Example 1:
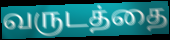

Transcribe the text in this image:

வருடத்தை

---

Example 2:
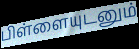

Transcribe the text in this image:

பிள்ளையுடனும்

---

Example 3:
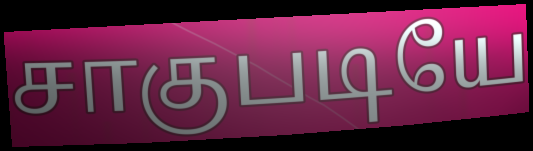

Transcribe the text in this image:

சாகுபடியே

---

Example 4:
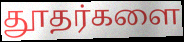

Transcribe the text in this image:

தூதர்களை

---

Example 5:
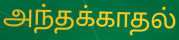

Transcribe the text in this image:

அந்தக்காதல்